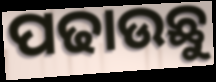
ପଢାଉଛୁ